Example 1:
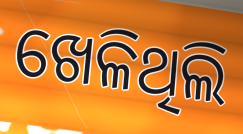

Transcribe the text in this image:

ଖେଳିଥିଲି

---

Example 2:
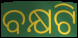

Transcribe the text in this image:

ବକ୍ଷଟି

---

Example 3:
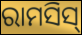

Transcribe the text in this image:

ରାମସିସ୍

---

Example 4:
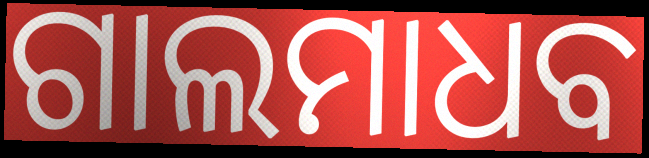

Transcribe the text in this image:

ଗାଲମାଧବ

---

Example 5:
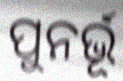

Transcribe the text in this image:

ପୁନର୍ଭୂ